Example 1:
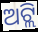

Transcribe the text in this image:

ଅଟ୍ଲି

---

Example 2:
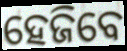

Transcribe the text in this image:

ହେଜିବେ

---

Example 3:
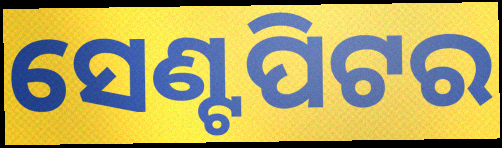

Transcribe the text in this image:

ସେଣ୍ଟପିଟର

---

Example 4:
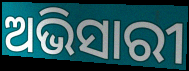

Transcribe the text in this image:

ଅଭିସାରୀ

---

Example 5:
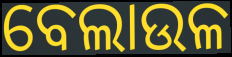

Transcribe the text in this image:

ବେଲାଉଳ